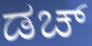
ಡಚ್